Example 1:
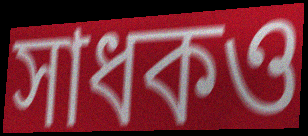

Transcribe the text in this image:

সাধকও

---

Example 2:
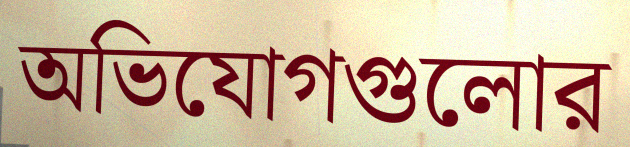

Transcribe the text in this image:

অভিযোগগুলোর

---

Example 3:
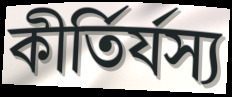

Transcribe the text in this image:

কীর্তির্যস্য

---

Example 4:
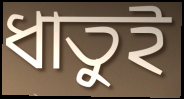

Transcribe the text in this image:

ধাতুই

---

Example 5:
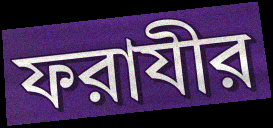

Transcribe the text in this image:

ফরাযীর